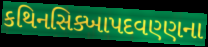
કથિનસિક્ખાપદવણ્ણના